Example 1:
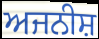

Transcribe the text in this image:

ਅਜਨੀਸ਼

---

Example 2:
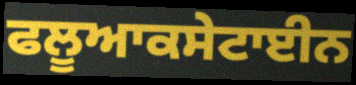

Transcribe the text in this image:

ਫਲੂਆਕਸੇਟਾਈਨ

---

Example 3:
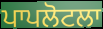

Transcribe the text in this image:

ਪਾਪਲੋਟਲਾ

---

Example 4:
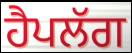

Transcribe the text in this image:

ਹੈਪਲੱਗ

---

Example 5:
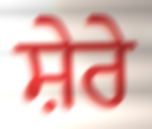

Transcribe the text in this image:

ਸ਼ੇਰੇ